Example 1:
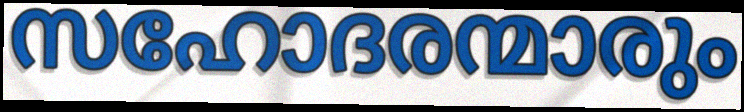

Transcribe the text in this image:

സഹോദരന്മാരും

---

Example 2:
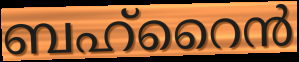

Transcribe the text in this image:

ബഹ്റൈൻ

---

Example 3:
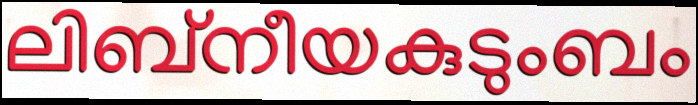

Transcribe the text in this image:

ലിബ്നീയകുടുംബം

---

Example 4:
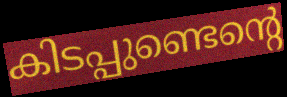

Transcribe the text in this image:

കിടപ്പുണ്ടെന്റെ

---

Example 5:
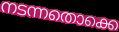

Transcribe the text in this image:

നടന്നതൊക്കെ